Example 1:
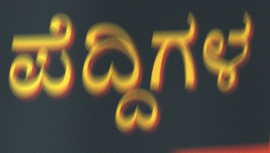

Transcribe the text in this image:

ಪೆದ್ದಿಗಳ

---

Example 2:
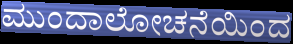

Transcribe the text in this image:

ಮುಂದಾಲೋಚನೆಯಿಂದ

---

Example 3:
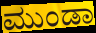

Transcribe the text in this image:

ಮುಂಡಾ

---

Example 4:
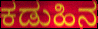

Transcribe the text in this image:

ಕಡುಹಿನ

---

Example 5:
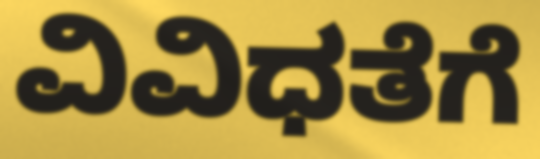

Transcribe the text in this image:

ವಿವಿಧತೆಗೆ